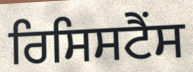
ਰਿਸਿਸਟੈਂਸ